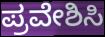
ಪ್ರವೇಶಿಸಿ